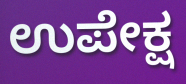
ಉಪೇಕ್ಷ